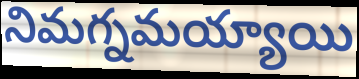
నిమగ్నమయ్యాయి